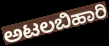
ಅಟಲಬಿಹಾರಿ